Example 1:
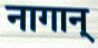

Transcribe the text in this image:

नागान्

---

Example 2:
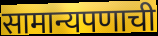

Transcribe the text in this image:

सामान्यपणाची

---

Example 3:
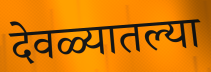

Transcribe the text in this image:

देवळ्यातल्या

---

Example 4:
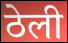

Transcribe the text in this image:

ठेली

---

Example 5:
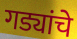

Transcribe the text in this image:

गड्यांचे